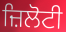
ਜ਼ਿਲੋਟੀ